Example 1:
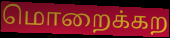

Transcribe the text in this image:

மொறைக்கற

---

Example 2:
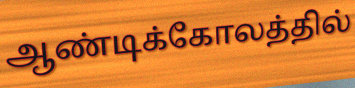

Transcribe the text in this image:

ஆண்டிக்கோலத்தில்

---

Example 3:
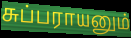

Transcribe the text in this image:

சுப்பராயனும்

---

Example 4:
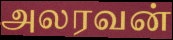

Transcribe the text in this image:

அலரவன்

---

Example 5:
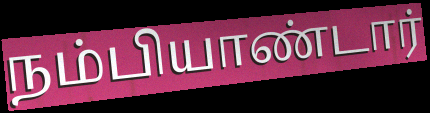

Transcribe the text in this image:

நம்பியாண்டார்